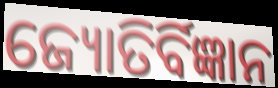
ଜ୍ୟୋତିର୍ବିଜ୍ଞାନ